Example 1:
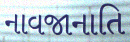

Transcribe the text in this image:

નાવજાનાતિ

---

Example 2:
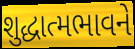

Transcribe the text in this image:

શુદ્ધાત્મભાવને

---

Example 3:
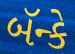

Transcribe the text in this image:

બૅન્કે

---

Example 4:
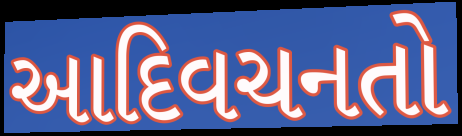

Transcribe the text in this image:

આદિવચનતો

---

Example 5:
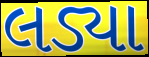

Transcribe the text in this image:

લડ્યા